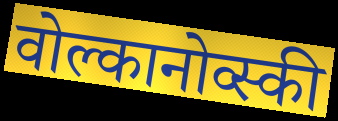
वोल्कानोव्स्की